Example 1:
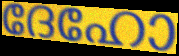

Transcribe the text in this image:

ദേഹോ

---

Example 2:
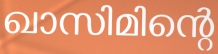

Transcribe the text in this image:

ഖാസിമിന്റെ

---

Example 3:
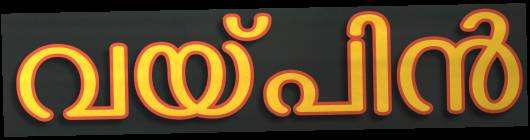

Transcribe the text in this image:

വയ്പിൻ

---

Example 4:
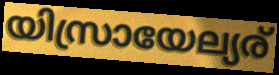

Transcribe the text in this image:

യിസ്രായേല്യര്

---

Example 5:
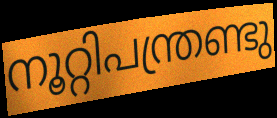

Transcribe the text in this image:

നൂറ്റിപന്ത്രണ്ടു